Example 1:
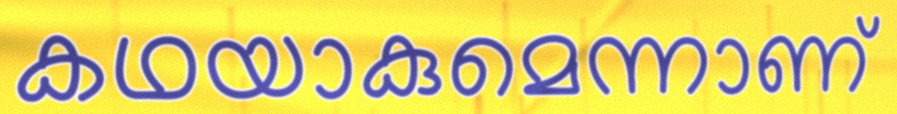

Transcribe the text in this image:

കഥയാകുമെന്നാണ്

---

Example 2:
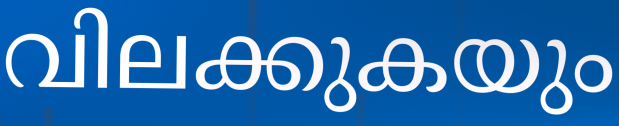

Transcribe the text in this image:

വിലക്കുകയും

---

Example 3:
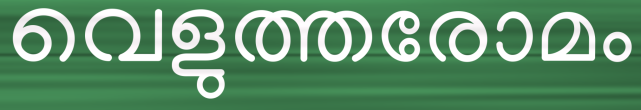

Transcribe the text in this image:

വെളുത്തരോമം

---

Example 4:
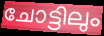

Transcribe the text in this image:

ചോട്ടിലും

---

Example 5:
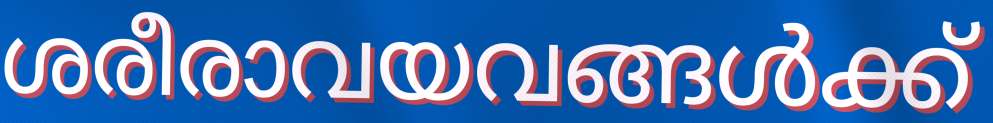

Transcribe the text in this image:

ശരീരാവയവങ്ങൾക്ക്